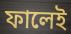
ফালেই